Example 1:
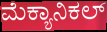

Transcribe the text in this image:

ಮೆಕ್ಯಾನಿಕಲ್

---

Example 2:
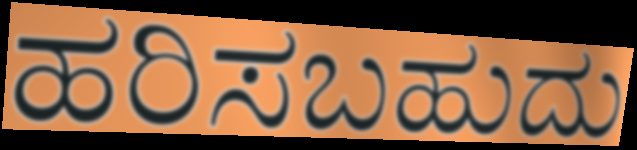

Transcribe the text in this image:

ಹರಿಸಬಹುದು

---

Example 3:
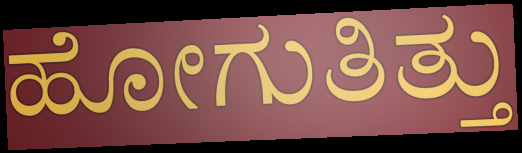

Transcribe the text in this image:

ಹೋಗುತಿತ್ತು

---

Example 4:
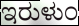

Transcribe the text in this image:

ಇರುಳುಂ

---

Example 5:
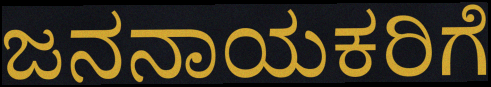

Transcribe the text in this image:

ಜನನಾಯಕರಿಗೆ